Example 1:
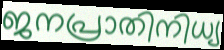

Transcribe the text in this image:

ജനപ്രാതിനിധ്യ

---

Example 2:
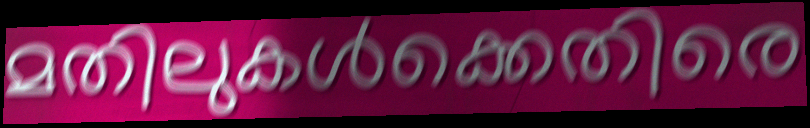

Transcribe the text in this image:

മതിലുകൾക്കെതിരെ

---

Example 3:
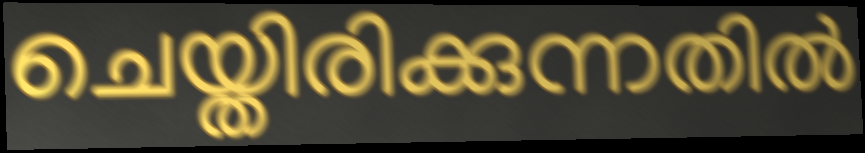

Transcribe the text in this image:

ചെയ്തിരിക്കുന്നതിൽ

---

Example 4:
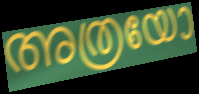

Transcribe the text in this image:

അത്രയോ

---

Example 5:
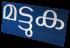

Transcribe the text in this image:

മട്ടുക